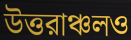
উত্তরাঞ্চলও